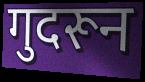
गुदरून